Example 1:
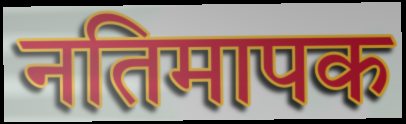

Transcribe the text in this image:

नतिमापक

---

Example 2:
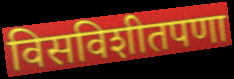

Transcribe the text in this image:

विसविशीतपणा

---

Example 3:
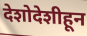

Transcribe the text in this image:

देशोदेशीहून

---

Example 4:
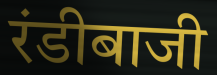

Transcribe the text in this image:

रंडीबाजी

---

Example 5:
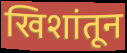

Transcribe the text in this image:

खिशांतून